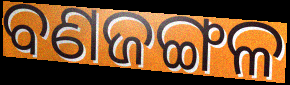
ବଣଜଙ୍ଗଳ